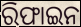
ରିଫାଇନ